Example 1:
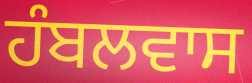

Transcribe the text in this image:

ਹੰਬਲਵਾਸ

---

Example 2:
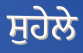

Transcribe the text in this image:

ਸੁਹੇਲੇ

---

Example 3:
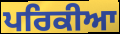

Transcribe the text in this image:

ਪਰਿਕੀਆ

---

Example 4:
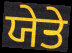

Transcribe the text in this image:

ਯੇਤੇ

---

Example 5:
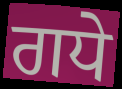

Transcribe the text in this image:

ਗਧੇ